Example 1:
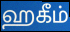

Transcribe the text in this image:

ஹகீம்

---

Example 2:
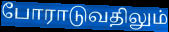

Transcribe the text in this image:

போராடுவதிலும்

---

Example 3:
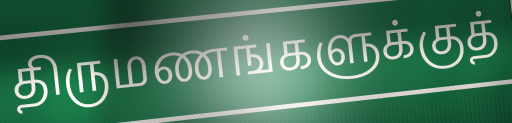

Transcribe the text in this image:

திருமணங்களுக்குத்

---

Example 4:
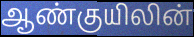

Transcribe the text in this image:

ஆண்குயிலின்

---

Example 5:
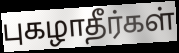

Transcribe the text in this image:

புகழாதீர்கள்